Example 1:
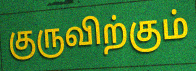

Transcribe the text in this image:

குருவிற்கும்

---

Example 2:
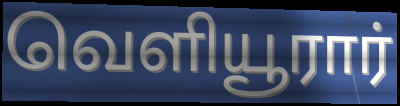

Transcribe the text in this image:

வெளியூரார்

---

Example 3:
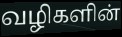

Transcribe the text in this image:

வழிகளின்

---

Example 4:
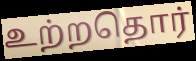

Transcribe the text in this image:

உற்றதொர்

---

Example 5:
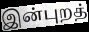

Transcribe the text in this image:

இன்புறத்